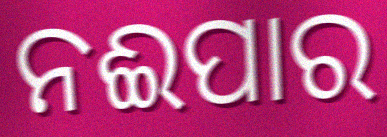
ନଈପାର